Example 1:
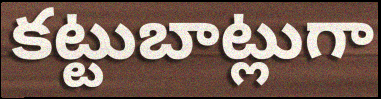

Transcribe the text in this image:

కట్టుబాట్లుగా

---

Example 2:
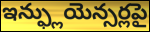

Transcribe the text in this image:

ఇన్ఫ్లుయెన్సర్లపై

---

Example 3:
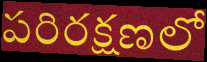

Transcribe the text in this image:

పరిరక్షణలో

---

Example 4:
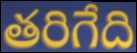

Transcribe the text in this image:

తరిగేది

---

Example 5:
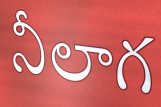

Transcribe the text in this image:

నీలాగ